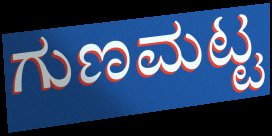
ಗುಣಮಟ್ಟ